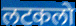
लटकलो